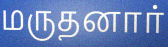
மருதனார்